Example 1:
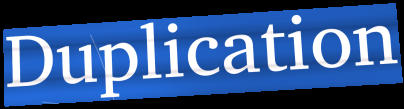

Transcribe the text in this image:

Duplication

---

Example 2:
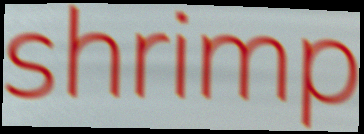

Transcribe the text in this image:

shrimp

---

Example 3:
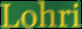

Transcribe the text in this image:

Lohri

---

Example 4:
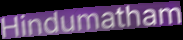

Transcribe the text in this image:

Hindumatham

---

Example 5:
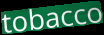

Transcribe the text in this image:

tobacco